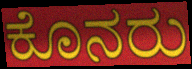
ಕೊನರು